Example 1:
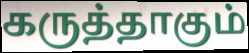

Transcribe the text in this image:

கருத்தாகும்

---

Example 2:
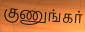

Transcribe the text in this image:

குணுங்கர்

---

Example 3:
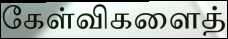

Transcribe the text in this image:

கேள்விகளைத்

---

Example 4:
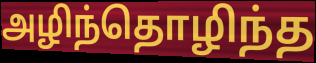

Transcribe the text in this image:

அழிந்தொழிந்த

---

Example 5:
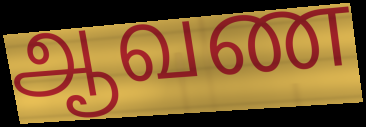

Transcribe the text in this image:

ஆவண